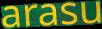
arasu